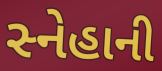
સ્નેહાની